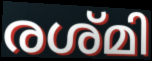
രശ്മി